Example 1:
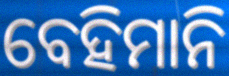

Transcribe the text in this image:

ବେହିମାନି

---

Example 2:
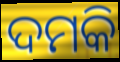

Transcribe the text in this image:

ଦମକି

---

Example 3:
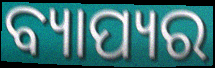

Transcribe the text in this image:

ବ୍ୟାପ୍ୟର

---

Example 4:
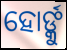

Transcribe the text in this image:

ହୋର୍ଙ୍କୁ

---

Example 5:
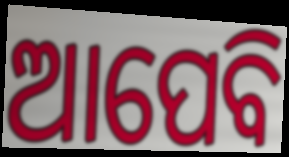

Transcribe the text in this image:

ଆପେବି